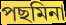
পছমিনা